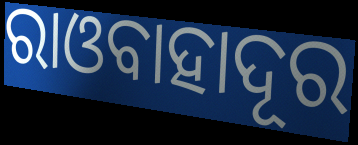
ରାଓବାହାଦୂର